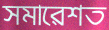
সমাৱেশত